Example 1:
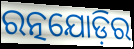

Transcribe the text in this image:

ରତ୍ନଯୋଡ଼ିର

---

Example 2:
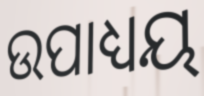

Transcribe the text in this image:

ଉପାଧ୍ୟୟ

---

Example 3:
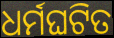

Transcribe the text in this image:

ଧର୍ମଘଟିତ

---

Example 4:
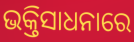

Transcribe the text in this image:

ଭକ୍ତିସାଧନାରେ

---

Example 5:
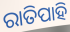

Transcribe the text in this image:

ରାତିପାହି